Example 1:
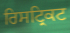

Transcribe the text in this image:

ਰਿਸਟ੍ਰਿਕਟ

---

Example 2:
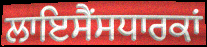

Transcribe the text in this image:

ਲਾਇਸੈਂਸਧਾਰਕਾਂ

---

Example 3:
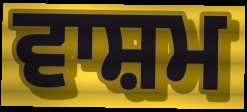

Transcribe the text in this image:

ਵਾਸ਼ਮ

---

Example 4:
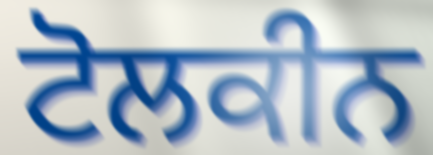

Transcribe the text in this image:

ਟੋਲਕੀਨ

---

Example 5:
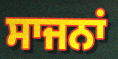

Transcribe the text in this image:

ਸਾਜਨਾਂ